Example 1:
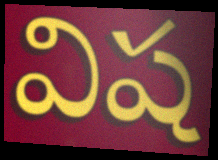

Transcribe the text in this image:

విష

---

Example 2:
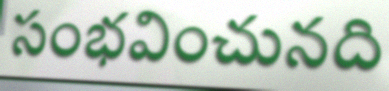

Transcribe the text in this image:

సంభవించునది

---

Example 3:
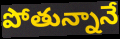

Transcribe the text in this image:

పోతున్నానే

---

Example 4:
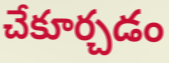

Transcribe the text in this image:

చేకూర్చడం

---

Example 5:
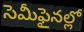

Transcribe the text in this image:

సెమీఫైనల్లో